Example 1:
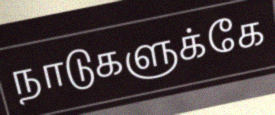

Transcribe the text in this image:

நாடுகளுக்கே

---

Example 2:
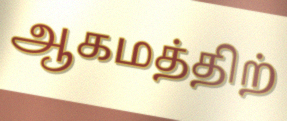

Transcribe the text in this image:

ஆகமத்திற்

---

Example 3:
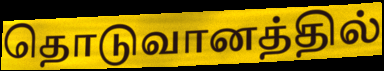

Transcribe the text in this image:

தொடுவானத்தில்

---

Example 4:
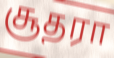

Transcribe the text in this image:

சூதரா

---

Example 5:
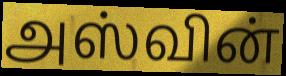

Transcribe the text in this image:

அஸ்வின்